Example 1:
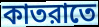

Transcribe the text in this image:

কাতরাতে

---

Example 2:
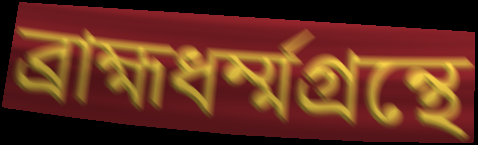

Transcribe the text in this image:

ব্রাহ্মধর্ম্মগ্রন্থে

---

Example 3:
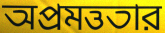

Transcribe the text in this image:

অপ্রমত্ততার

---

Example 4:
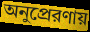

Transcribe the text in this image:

অনুপ্রেরণায়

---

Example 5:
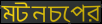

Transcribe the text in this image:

মটনচপের